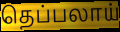
தெப்பலாய்